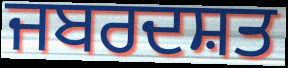
ਜਬਰਦਸ਼ਤ